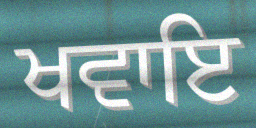
ਖਵਾਇ